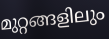
മുറ്റങ്ങളിലും